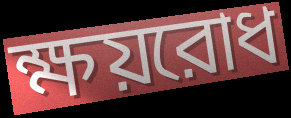
ক্ষয়রোধ